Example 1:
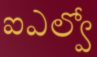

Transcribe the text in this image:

ఐఎల్వో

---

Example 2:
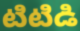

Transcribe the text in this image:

టిటిడి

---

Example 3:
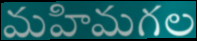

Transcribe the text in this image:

మహిమగల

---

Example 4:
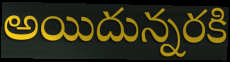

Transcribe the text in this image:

అయిదున్నరకి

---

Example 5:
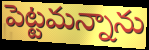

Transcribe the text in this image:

పెట్టమన్నాను